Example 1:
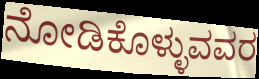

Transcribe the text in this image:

ನೋಡಿಕೊಳ್ಳುವವರ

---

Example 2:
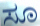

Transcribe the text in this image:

ಸೂ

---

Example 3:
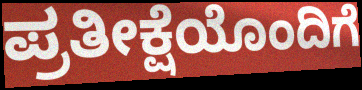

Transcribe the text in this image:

ಪ್ರತೀಕ್ಷೆಯೊಂದಿಗೆ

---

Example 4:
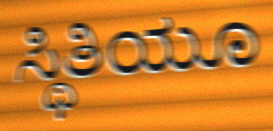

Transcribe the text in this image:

ಸ್ಥಿತಿಯೂ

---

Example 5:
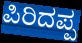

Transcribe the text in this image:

ಪಿರಿದಪ್ಪ